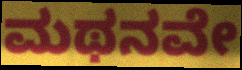
ಮಥನವೇ